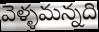
వెళ్ళమన్నది